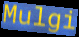
Mulgi